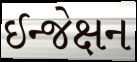
ઈન્જેક્ષન